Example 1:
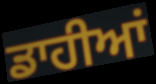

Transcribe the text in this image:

ਡਾਹੀਆਂ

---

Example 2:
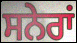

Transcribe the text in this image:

ਸਨੇਰਾਂ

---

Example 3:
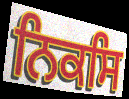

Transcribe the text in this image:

ਨਿਕਸਿ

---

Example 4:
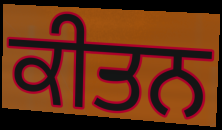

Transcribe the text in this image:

ਕੀਤਨ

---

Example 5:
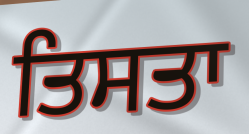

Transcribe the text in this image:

ਤਿਸਤਾ